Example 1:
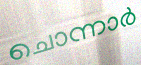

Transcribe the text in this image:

ചൊന്നാർ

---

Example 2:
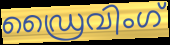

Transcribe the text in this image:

ഡ്രൈവിംഗ്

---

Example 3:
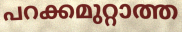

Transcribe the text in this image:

പറക്കമുറ്റാത്ത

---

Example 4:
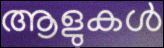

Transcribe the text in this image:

ആളുകൾ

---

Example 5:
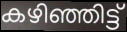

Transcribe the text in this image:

കഴിഞ്ഞിട്ട്